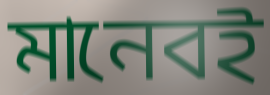
মানেবই